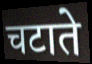
चटाते